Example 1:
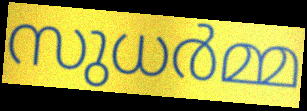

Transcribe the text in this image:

സുധർമ്മ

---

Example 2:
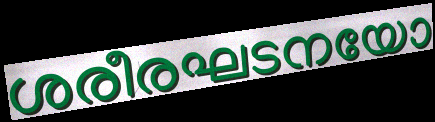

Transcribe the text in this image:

ശരീരഘടനയോ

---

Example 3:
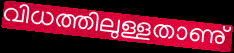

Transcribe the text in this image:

വിധത്തിലുള്ളതാണു്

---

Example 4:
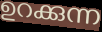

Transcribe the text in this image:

ഉറക്കുന്ന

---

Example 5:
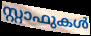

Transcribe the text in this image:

സ്റ്റാഫുകൾ